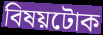
বিষয়টোক